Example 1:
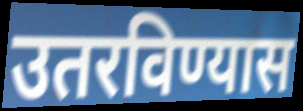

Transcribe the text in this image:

उतरविण्यास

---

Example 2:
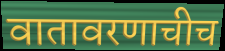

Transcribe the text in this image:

वातावरणाचीच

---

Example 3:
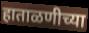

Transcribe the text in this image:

हाताळणीच्या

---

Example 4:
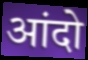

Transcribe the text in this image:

आंदो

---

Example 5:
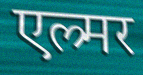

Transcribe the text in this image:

एल्मर